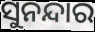
ସୁନନ୍ଦାର